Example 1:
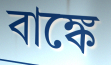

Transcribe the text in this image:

বাঙ্কে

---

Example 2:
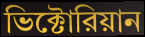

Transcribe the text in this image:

ভিক্টোরিয়ান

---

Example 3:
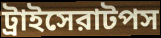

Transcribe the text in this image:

ট্রাইসেরাটপস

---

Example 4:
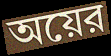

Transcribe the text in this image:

অয়ের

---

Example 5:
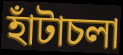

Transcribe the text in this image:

হাঁটাচলা